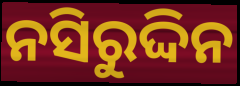
ନସିରୁଦ୍ଦିନ